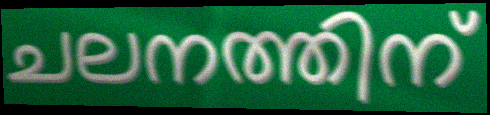
ചലനത്തിന്